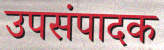
उपसंपादक